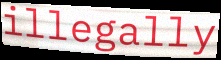
illegally